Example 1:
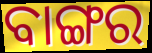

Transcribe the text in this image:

ବାଙ୍ଗର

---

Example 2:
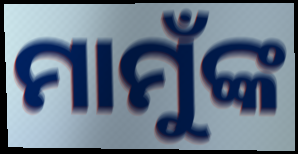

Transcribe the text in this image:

ମାମୁଁଙ୍କ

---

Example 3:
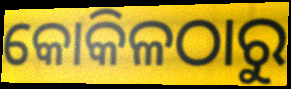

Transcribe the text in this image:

କୋକିଳଠାରୁ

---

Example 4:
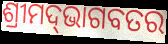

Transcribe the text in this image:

ଶ୍ରୀମଦ୍‌ଭାଗବତର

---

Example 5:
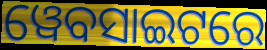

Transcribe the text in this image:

ୱେବସାଇଟରେ